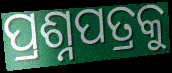
ପ୍ରଶ୍ନପତ୍ରକୁ